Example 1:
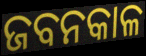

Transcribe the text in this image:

ଜବନକାଳ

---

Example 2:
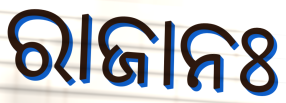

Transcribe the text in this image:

ରାଜାନଃ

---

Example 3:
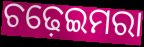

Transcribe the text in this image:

ଚଢ଼େଇମରା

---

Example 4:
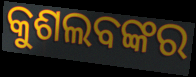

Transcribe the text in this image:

କୁଶଲବଙ୍କର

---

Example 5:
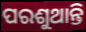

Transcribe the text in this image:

ପରଶୁଥାନ୍ତି